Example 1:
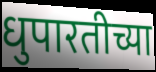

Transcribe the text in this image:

धुपारतीच्या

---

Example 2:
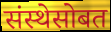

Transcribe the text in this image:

संस्थेसोबत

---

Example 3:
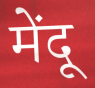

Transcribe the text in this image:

मेंदू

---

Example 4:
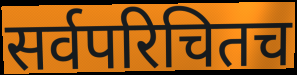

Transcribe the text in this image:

सर्वपरिचितच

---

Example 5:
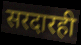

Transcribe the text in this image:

सरदारही